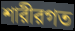
শারীরগত